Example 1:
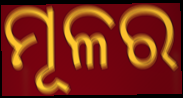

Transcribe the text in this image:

ମୂଳର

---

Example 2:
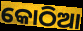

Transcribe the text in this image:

କୋଠିଆ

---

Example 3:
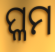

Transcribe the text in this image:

ପ୍ଳମ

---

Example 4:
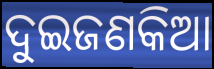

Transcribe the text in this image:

ଦୁଇଜଣକିଆ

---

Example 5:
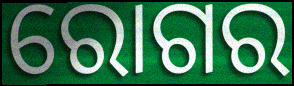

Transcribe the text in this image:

ରୋଗର